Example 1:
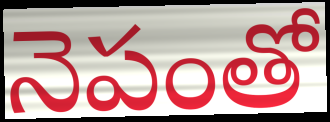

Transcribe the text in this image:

నెపంతో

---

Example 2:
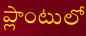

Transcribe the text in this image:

ప్లాంటులో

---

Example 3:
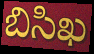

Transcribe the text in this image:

బిసిఖ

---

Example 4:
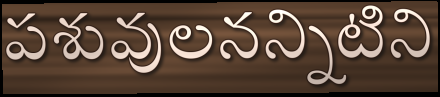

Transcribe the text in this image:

పశువులనన్నిటిని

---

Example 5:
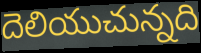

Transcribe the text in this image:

దెలియుచున్నది